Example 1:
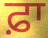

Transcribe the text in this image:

ਫ਼ਾ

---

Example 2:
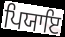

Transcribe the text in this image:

ਪਿਯਾਇ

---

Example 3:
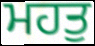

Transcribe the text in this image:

ਮਹਤੁ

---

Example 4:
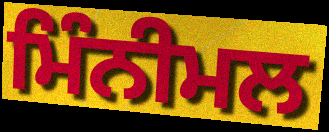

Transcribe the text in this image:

ਮਿੰਨੀਮਲ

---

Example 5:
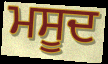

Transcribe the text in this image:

ਮਸੂਦ